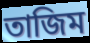
তাজিম